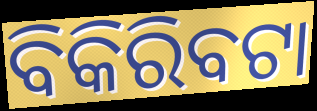
ବିକିରିବଟା